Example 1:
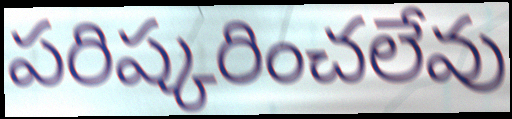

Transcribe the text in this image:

పరిష్కరించలేవు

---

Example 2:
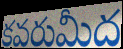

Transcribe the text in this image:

కవరుమీద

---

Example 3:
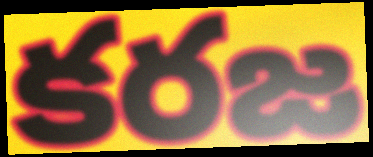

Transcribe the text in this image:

కరజ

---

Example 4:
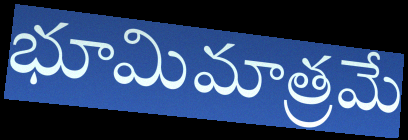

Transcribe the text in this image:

భూమిమాత్రమే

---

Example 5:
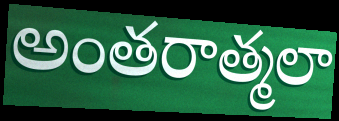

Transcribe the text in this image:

అంతరాత్మలా